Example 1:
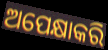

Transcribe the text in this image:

ଅପେକ୍ଷାକରି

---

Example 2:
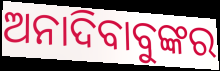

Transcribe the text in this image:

ଅନାଦିବାବୁଙ୍କର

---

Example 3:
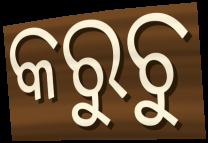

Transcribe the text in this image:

କରୁଚୁ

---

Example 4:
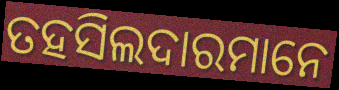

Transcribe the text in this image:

ତହସିଲଦାରମାନେ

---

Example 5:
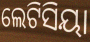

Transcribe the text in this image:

ଲେଟିସିୟା